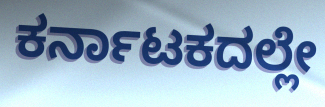
ಕರ್ನಾಟಕದಲ್ಲೇ